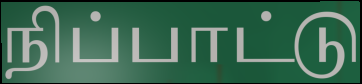
நிப்பாட்டு